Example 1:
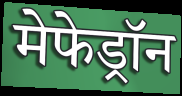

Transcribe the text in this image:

मेफेड्रॉन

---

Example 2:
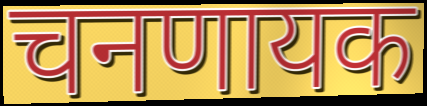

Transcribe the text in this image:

चनणायक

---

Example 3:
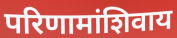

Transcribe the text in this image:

परिणामांशिवाय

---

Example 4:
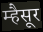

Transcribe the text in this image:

म्हैसूर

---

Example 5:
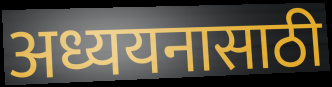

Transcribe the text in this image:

अध्ययनासाठी